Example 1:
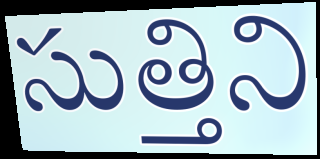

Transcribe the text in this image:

సుత్తిని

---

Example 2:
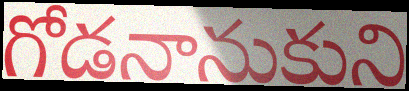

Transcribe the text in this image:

గోడనానుకుని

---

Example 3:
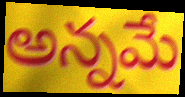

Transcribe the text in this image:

అన్నమే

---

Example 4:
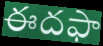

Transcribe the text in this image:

ఈదఫా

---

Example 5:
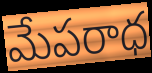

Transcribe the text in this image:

మేపరాధ